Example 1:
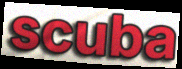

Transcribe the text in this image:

scuba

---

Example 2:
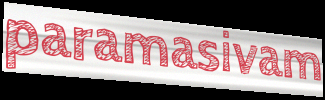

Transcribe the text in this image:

paramasivam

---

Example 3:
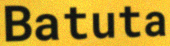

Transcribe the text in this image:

Batuta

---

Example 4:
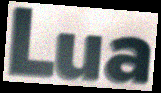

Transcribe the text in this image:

Lua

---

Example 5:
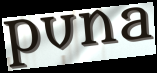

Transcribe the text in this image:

puna